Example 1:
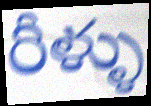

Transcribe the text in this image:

రీళ్ళు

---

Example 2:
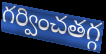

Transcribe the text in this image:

గర్వించతగ్గ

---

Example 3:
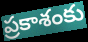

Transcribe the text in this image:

ప్రకాశంకు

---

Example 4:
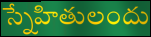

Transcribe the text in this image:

స్నేహితులందు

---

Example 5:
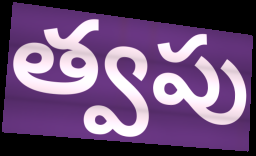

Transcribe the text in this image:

త్వపు